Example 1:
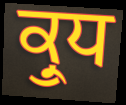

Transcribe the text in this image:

ਕ੍ਰੁਧ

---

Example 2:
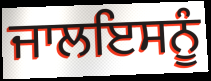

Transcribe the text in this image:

ਜਾਲਇਸਨੂੰ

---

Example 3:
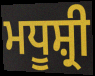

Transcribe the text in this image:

ਮਧੂਸ਼੍ਰੀ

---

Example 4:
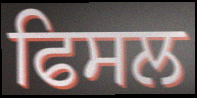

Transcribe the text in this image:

ਫਿਸਲ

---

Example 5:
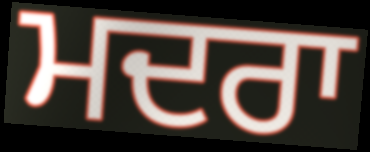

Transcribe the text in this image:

ਮਦਰਾ